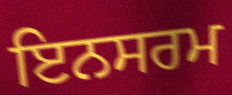
ਇਨਸਰਮ